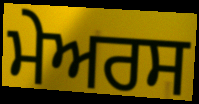
ਮੇਅਰਸ